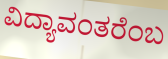
ವಿದ್ಯಾವಂತರೆಂಬ